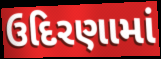
ઉદિરણામાં